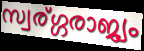
സ്വര്ഗ്ഗരാജ്യം